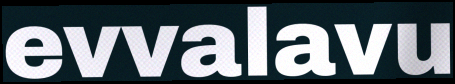
evvalavu